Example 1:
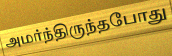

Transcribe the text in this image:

அமர்ந்திருந்தபோது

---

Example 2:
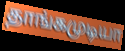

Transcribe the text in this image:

தாங்கமுடியா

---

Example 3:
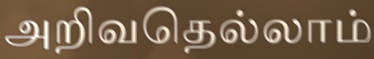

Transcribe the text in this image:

அறிவதெல்லாம்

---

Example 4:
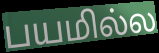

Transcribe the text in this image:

பயமில்ல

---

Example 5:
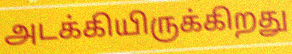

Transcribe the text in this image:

அடக்கியிருக்கிறது